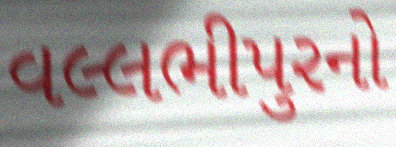
વલ્લભીપુરનો